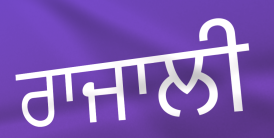
ਰਾਜਾਲੀ